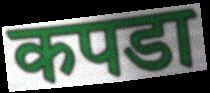
कपडा